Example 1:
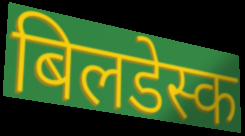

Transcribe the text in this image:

बिलडेस्क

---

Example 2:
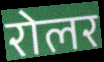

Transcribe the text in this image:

रोलर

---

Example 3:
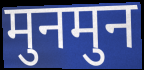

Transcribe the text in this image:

मुनमुन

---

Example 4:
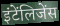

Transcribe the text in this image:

इंटेंलिजेंस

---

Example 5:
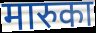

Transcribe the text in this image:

मारुका